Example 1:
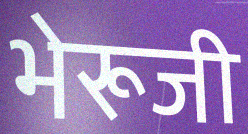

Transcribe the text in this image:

भेरूजी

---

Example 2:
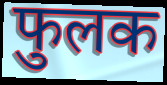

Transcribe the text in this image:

फुलक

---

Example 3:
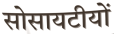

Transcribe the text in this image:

सोसायटीयों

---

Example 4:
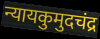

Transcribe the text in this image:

न्यायकुमुदचंद्र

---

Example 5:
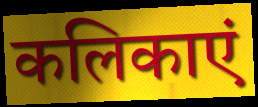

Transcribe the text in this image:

कलिकाएं